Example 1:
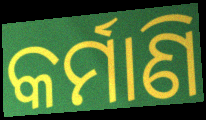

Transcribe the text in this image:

କର୍ମାଣି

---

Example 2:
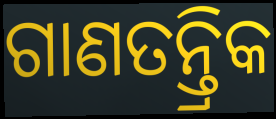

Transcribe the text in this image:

ଗାଣତନ୍ତ୍ରିକ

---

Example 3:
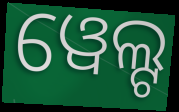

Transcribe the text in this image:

ୱେଲ୍ଟ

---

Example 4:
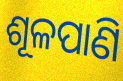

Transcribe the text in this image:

ଶୂଳପାଣି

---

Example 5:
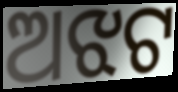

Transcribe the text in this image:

ଅଝଟ